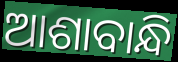
ଆଶାବାନ୍ଧି